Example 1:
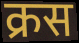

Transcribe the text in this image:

क्रस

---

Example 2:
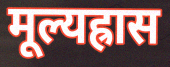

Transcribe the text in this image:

मूल्यह्रास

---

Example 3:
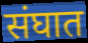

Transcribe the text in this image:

संघात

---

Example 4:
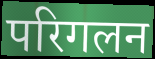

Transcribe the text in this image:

परिगलन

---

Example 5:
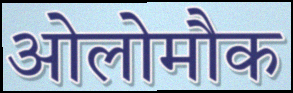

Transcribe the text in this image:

ओलोमौक